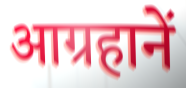
आग्रहानें